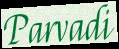
Parvadi